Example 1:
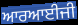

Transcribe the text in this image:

ਆਰਆਈਜੀ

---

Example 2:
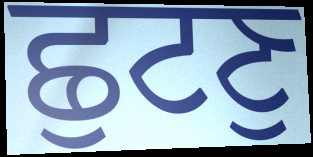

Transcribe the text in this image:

ਛੁਟਣੁ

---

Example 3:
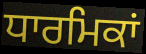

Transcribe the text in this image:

ਧਾਰਮਿਕਾਂ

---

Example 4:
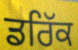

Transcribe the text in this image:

ਡਰਿੱਕ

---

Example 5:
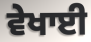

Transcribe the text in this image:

ਵੇਖਾਈ